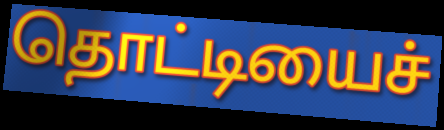
தொட்டியைச்